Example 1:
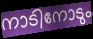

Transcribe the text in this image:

നാടിനോടും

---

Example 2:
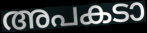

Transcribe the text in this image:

അപകടാ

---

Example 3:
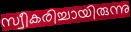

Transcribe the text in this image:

സ്വീകരിച്ചായിരുന്നു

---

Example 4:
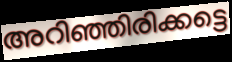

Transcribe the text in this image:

അറിഞ്ഞിരിക്കട്ടെ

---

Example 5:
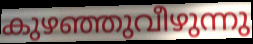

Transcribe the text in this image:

കുഴഞ്ഞുവീഴുന്നു